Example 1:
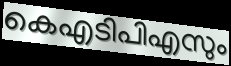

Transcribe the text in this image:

കെഎടിപിഎസും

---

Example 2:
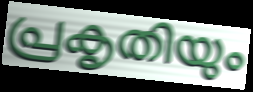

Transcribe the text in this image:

പ്രകൃതിയും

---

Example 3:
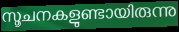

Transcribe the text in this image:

സൂചനകളുണ്ടായിരുന്നു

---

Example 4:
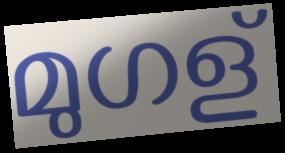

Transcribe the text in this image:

മുഗള്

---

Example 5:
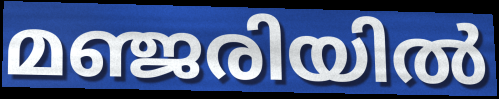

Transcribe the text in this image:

മഞ്ജരിയിൽ